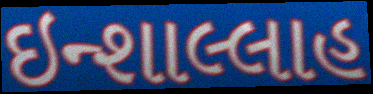
ઇન્શાલ્લાહ